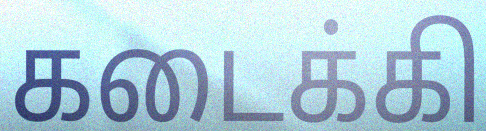
கடைக்கி